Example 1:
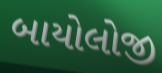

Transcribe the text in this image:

બાયોલોજી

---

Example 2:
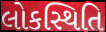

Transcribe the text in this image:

લોકસ્થિતિ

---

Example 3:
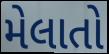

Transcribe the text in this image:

મેલાતો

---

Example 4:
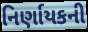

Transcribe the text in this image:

નિર્ણાયકની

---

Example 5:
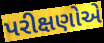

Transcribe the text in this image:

પરીક્ષણોએ